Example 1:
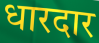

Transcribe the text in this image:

धारदार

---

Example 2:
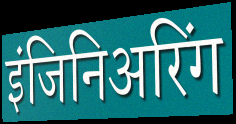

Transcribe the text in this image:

इंजिनिअरिंग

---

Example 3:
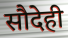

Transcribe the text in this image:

सौदेही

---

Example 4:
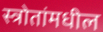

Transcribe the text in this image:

स्त्रोतांमधील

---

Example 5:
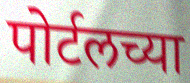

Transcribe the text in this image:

पोर्टलच्या